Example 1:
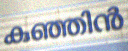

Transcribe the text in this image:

കുഞ്ഞിൻ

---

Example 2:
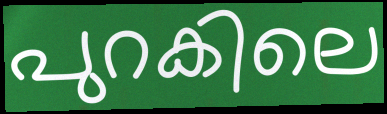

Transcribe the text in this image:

പുറകിലെ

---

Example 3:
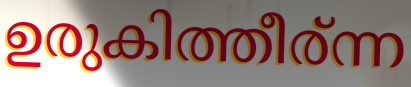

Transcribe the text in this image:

ഉരുകിത്തീര്ന്ന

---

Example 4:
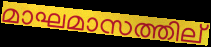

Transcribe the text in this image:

മാഘമാസത്തില്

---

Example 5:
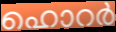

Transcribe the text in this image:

ഹൊറർ